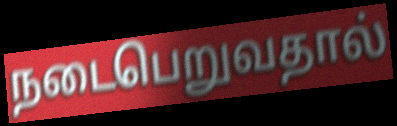
நடைபெறுவதால்